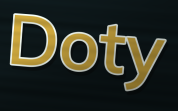
Doty